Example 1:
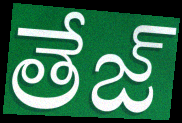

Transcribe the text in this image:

తేజ్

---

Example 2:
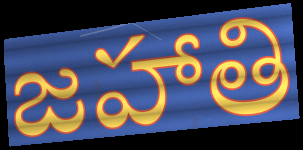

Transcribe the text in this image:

జహాతి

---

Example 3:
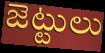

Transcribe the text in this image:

జెట్టులు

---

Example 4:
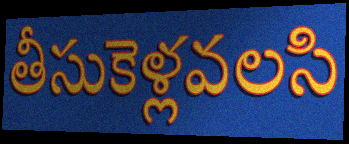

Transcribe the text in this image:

తీసుకెళ్లవలసి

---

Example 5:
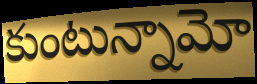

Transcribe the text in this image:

కుంటున్నామో